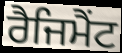
ਰੈਜਿਮੈਂਟ